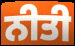
ਨੀਤੀ